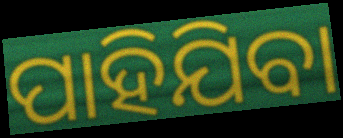
ପାହିଯିବା